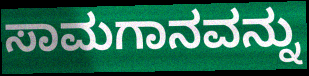
ಸಾಮಗಾನವನ್ನು